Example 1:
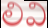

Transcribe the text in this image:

లివి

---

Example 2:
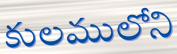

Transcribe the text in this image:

కులములోని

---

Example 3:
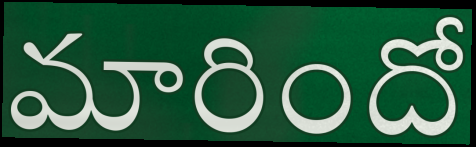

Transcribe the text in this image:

మారిందో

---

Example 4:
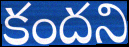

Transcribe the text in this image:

కందని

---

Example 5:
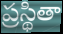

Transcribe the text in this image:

ప్రస్థితా